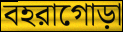
বহরাগোড়া